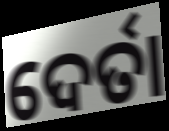
ଦେର୍ତା